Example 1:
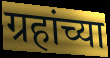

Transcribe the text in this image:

ग्रहांच्या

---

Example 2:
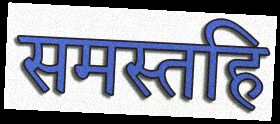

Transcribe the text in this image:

समस्तहि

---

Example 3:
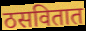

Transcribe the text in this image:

ठसवितात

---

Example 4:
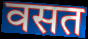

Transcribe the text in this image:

वसत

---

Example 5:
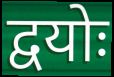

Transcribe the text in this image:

द्वयोः